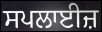
ਸਪਲਾਈਜ਼